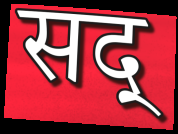
सद्